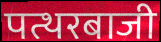
पत्थरबाजी